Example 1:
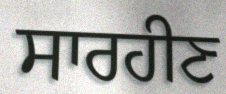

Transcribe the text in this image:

ਸਾਰਹੀਣ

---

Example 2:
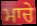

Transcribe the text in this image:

ਮਾਚੇ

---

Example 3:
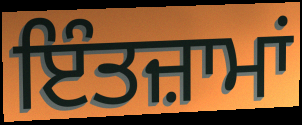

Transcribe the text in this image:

ਇੰਤਜ਼ਾਮਾਂ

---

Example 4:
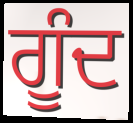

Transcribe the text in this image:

ਗੂੰਦ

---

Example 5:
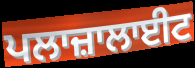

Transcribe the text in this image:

ਪਲਾਜ਼ਾਲਾਈਟ